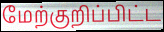
மேற்குறிப்பிட்ட